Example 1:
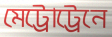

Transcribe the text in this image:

মেট্রোট্রেনে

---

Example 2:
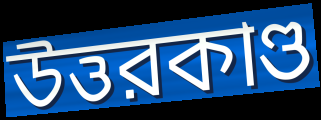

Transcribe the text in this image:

উত্তরকাণ্ড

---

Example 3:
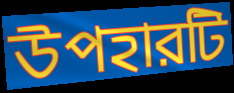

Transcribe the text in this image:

উপহারটি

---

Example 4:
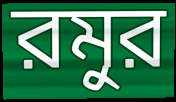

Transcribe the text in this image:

রমুর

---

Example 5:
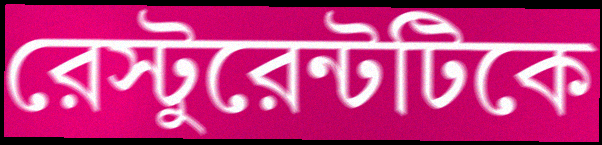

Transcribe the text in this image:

রেস্টুরেন্টটিকে